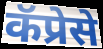
कॅप्रेसे